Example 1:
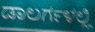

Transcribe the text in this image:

ಡಾಲರ್ಗಳಲ್ಲಿ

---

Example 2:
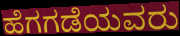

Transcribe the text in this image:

ಹೆಗಗಡೆಯವರು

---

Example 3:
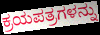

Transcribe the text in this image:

ಕ್ರಯಪತ್ರಗಳನ್ನು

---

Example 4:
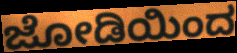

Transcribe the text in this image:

ಜೋಡಿಯಿಂದ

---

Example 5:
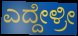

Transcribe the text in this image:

ಎದ್ದೇಳ್ರೀ